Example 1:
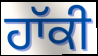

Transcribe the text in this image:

ਹਾੱਕੀ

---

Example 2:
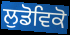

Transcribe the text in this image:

ਲੁਡੋਵਿਕੋ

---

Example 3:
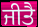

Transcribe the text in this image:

ਜੀਤੈ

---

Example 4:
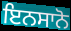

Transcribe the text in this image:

ਇਨਸਾਨੋ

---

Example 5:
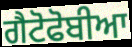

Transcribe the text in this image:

ਗੈਟੋਫੋਬੀਆ